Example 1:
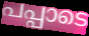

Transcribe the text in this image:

പപ്പാടെ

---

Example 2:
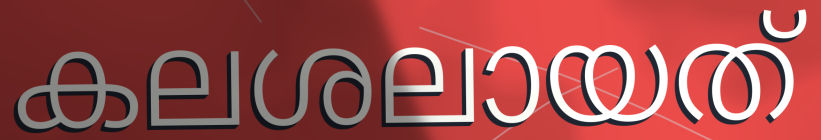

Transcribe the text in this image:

കലശലായത്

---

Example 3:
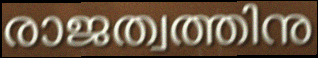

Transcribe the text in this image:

രാജത്വത്തിനു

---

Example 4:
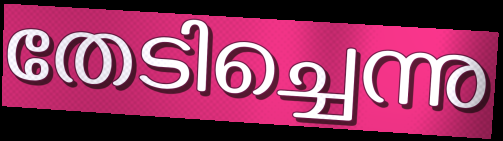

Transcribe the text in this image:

തേടിച്ചെന്നു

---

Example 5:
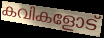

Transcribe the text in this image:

കവികളോട്